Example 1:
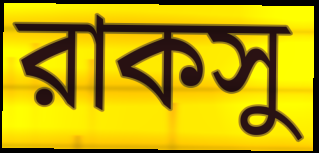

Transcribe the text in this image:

রাকসু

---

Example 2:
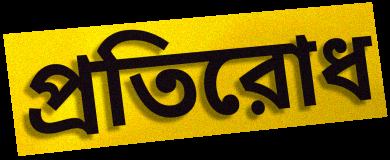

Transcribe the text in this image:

প্রতিরোধ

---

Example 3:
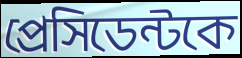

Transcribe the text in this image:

প্রেসিডেন্টকে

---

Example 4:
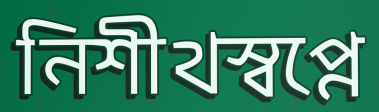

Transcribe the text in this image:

নিশীথস্বপ্নে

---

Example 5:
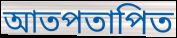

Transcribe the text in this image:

আতপতাপিত